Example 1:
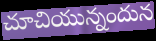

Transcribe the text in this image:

చూచియున్నందున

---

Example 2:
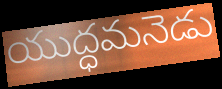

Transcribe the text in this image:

యుద్ధమనెడు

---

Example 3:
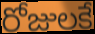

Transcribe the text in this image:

రోజులకే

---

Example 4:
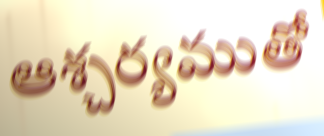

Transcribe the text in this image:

ఆశ్చర్యముతో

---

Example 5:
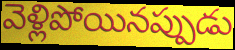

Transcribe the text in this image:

వెళ్లిపోయినప్పుడు